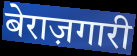
बेराज़गारी